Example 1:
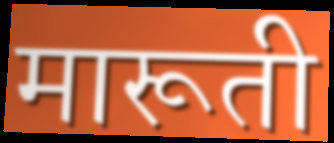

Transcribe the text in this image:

मारूती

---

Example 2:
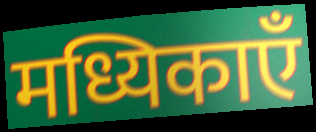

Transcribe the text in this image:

मध्यिकाएँ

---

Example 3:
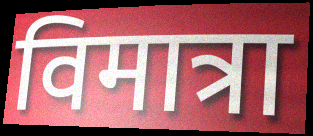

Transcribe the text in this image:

विमात्रा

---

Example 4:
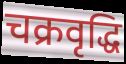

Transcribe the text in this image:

चक्रवृद्धि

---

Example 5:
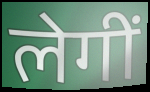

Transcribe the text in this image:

लेगीं